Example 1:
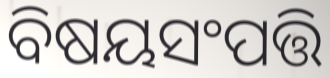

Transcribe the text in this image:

ବିଷୟସଂପତ୍ତି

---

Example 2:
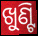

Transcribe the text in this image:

ଖୁଣ୍ଟି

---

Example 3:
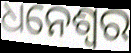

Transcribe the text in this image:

ଧନେଶ୍ବର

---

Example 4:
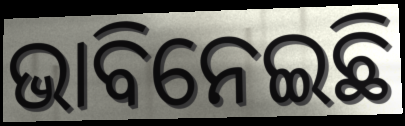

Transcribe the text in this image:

ଭାବିନେଇଛି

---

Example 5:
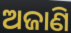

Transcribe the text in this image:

ଅଜାଣି